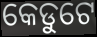
କେଡୁଟେ